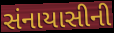
સંનાયાસીની